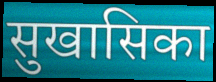
सुखासिका